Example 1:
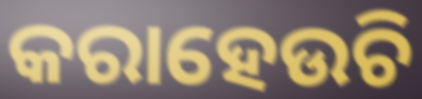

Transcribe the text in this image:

କରାହେଉଚି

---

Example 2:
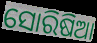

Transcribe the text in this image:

ସୋରିଷିଆ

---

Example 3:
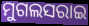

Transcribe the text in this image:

ମୁଗଲସରାଇ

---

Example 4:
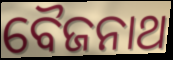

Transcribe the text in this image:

ବୈଜନାଥ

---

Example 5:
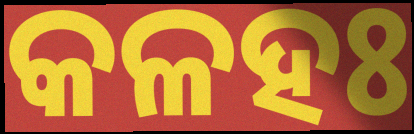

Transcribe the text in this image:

କଳହଃ